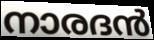
നാരദൻ